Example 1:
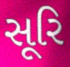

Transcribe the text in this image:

સૂરિ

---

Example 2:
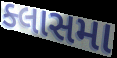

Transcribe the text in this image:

ક્લાસમા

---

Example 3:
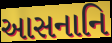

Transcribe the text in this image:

આસનાનિ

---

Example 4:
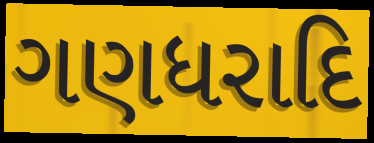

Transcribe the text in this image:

ગણધરાદિ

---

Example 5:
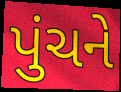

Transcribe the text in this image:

પુંચને